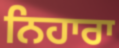
ਨਿਹਾਰਾ